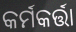
କର୍ମକର୍ତ୍ତା